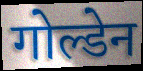
गोल्डेन